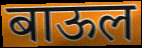
बाऊल